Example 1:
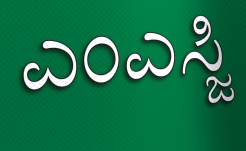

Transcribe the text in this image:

ಎಂಎಸ್ಜಿ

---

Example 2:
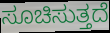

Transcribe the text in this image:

ಸೂಚಿಸುತ್ತದೆ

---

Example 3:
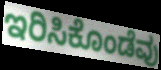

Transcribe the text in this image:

ಇರಿಸಿಕೊಂಡೆವು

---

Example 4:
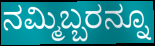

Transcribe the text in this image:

ನಮ್ಮಿಬ್ಬರನ್ನೂ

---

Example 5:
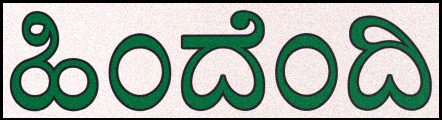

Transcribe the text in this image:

ಹಿಂದೆಂದಿ